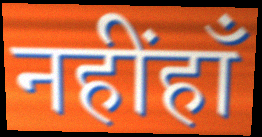
नहींहाँ